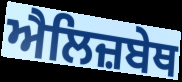
ਐਲਿਜ਼ਬੇਥ